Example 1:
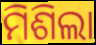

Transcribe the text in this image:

ମିଶିଲା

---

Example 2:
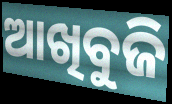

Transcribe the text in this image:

ଆଖିବୁଜି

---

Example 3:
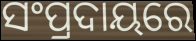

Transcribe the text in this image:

ସଂପ୍ରଦାୟରେ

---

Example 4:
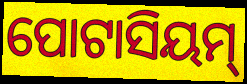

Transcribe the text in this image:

ପୋଟାସିୟମ୍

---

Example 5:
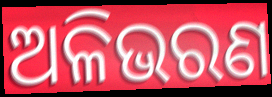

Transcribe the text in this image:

ଅଳିଭରଣ